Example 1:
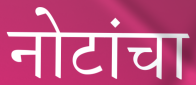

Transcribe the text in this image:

नोटांचा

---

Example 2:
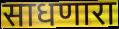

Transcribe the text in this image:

साधणारा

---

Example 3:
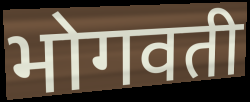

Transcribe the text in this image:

भोगवती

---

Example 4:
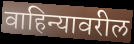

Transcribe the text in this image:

वाहिन्यावरील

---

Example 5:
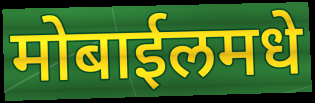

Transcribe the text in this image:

मोबाईलमधे